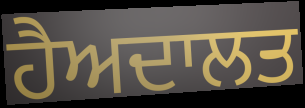
ਹੈਅਦਾਲਤ